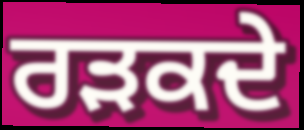
ਰੜਕਦੇ